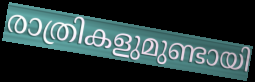
രാത്രികളുമുണ്ടായി